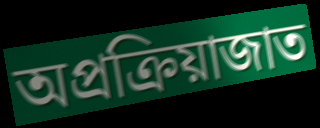
অপ্রক্রিয়াজাত